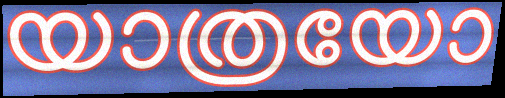
യാത്രയോ